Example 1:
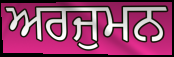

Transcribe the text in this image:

ਅਰਜੁਮਨ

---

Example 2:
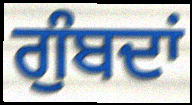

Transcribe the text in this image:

ਗੁੰਬਦਾਂ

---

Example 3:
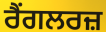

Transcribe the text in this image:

ਰੈਂਗਲਰਜ਼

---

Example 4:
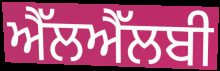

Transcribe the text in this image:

ਐੱਲਐੱਲਬੀ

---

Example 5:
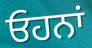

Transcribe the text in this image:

ਓਹਨਾਂ